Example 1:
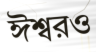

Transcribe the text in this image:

ঈশ্বরও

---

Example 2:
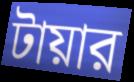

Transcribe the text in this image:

টায়ার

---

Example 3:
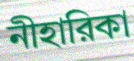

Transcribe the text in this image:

নীহারিকা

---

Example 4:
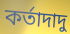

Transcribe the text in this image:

কর্তাদাদু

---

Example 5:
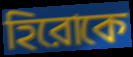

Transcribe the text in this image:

হিরোকে